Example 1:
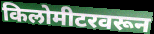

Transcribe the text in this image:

किलोमीटरवरून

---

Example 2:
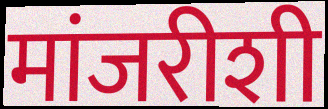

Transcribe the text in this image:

मांजरीशी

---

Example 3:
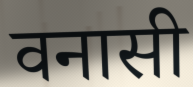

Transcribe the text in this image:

वनासी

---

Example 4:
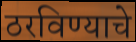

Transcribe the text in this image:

ठरविण्याचे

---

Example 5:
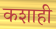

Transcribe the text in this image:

कशाही